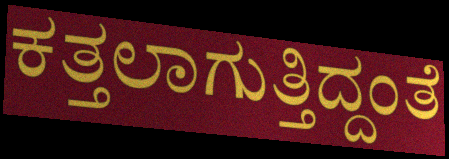
ಕತ್ತಲಾಗುತ್ತಿದ್ದಂತೆ